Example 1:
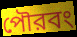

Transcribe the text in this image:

পৌরবং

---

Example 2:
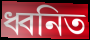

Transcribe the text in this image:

ধ্বনিত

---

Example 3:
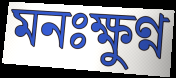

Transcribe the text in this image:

মনঃক্ষুণ্ন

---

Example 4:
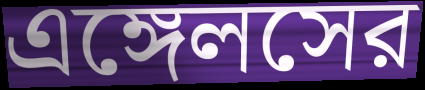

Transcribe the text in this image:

এঙ্গেলসের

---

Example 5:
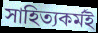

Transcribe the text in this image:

সাহিত্যকর্মই